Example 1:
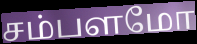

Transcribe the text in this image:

சம்பளமோ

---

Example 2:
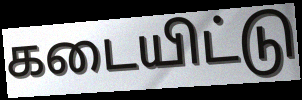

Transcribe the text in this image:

கடையிட்டு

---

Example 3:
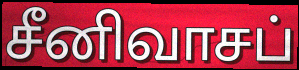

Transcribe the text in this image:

சீனிவாசப்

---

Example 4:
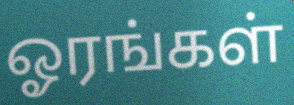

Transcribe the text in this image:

ஓரங்கள்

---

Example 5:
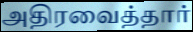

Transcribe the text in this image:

அதிரவைத்தார்